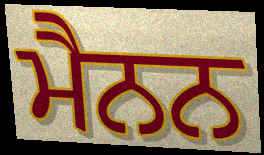
ਮੈਨਨ